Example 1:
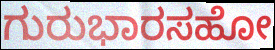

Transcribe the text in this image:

ಗುರುಭಾರಸಹೋ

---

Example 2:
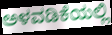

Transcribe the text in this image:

ಅಳವಡಿಕೆಯಲ್ಲಿ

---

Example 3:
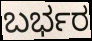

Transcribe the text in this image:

ಬರ್ಭರ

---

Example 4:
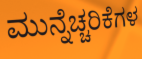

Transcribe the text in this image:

ಮುನ್ನೆಚ್ಚರಿಕೆಗಳ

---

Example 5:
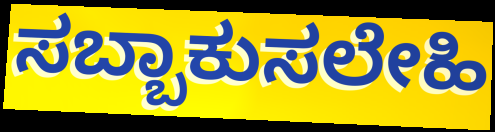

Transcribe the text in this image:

ಸಬ್ಬಾಕುಸಲೇಹಿ